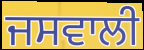
ਜਸਵਾਲੀ